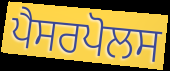
ਪੈਸਰਪੋਲਸ